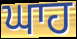
ਘਾਹ